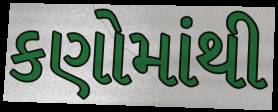
કણોમાંથી